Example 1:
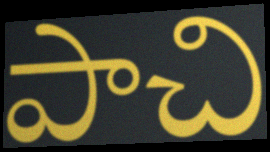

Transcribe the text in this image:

పాచి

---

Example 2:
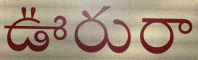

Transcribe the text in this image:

ఊరురా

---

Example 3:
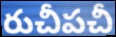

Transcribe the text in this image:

రుచీపచీ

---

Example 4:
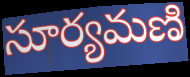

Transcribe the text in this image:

సూర్యమణి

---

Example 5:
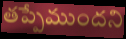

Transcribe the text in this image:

తప్పేముందని